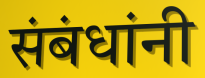
संबंधांनी